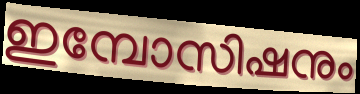
ഇമ്പോസിഷനും